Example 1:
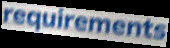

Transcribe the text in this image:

requirements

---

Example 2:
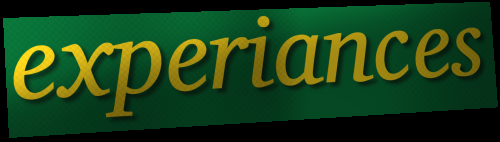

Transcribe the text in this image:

experiances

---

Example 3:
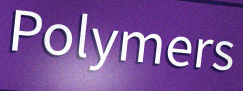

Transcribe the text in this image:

Polymers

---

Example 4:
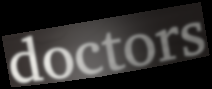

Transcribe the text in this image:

doctors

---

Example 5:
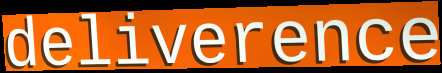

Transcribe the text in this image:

deliverence